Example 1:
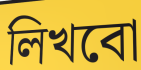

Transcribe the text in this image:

লিখবো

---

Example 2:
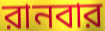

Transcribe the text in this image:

রানবার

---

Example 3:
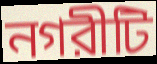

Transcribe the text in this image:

নগরীটি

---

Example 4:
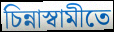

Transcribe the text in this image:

চিন্নাস্বামীতে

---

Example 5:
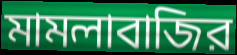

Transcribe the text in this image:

মামলাবাজির